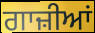
ਗਾਜ਼ੀਆਂ